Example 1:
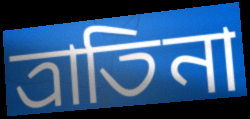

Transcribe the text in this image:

ত্রাতিনা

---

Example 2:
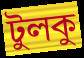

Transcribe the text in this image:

টুলকু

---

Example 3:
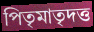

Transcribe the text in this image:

পিতৃমাতৃদত্ত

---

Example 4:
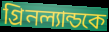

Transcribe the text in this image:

গ্রিনল্যান্ডকে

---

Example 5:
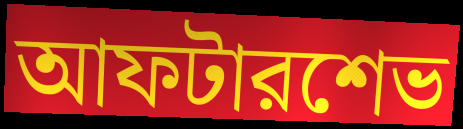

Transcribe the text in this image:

আফটারশেভ